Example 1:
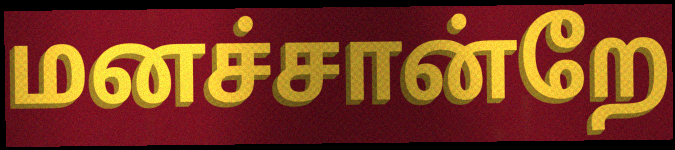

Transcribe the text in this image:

மனச்சான்றே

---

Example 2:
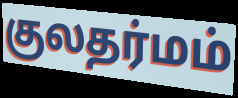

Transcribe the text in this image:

குலதர்மம்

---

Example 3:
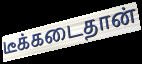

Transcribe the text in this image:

டீக்கடைதான்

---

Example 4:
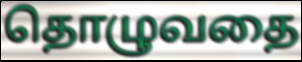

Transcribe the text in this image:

தொழுவதை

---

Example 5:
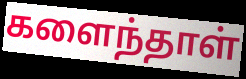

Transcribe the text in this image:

களைந்தாள்